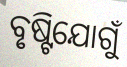
ବୃଷ୍ଟିଯୋଗୁଁ